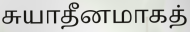
சுயாதீனமாகத்